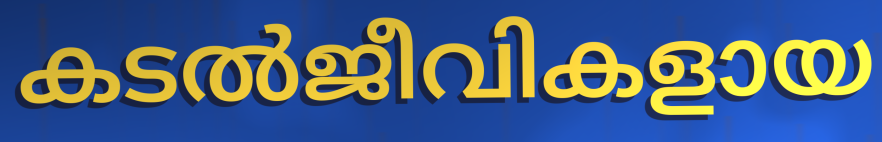
കടൽജീവികളായ